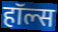
हॉल्स